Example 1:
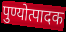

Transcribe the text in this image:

पुण्योत्पादक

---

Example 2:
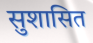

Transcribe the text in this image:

सुशासित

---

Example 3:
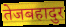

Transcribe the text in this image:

तेजबहादुर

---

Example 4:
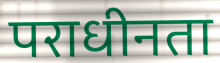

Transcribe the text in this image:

पराधीनता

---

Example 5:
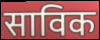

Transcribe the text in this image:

साविक